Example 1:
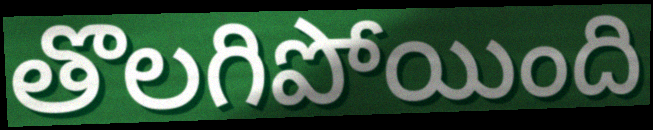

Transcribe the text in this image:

తొలగిపోయింది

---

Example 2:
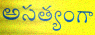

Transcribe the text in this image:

అసత్యంగా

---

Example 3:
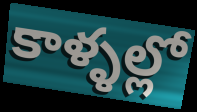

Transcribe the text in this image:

కాళ్ళల్లో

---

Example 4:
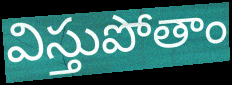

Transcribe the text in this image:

విస్తుపోతాం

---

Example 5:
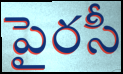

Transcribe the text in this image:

పైరసీ